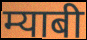
म्याबी